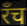
रँच